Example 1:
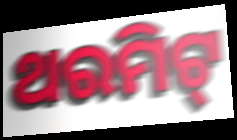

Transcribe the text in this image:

ଥରମିଟ୍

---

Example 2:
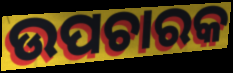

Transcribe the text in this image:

ଉପଚାରକ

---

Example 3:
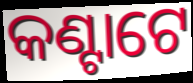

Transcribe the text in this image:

କଣ୍ଟାଟେ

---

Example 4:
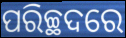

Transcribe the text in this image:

ପରିଚ୍ଛଦରେ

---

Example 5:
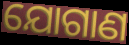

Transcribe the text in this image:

ଯୋଗାଣ